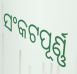
ସଂକଟପୂର୍ଣ୍ଣ